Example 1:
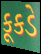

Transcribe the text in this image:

કૂકડે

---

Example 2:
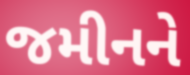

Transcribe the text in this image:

જમીનને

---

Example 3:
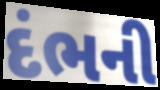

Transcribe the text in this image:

દંભની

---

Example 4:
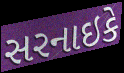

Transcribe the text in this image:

સરનાઇકે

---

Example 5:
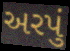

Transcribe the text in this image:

અરપું